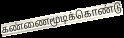
கண்ணைமூடிக்கொண்டு